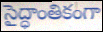
సైద్ధాంతికంగా